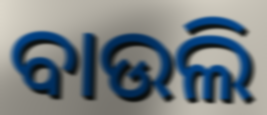
ବାଉଲି